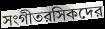
সংগীতরসিকদের